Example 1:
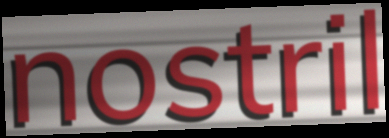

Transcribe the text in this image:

nostril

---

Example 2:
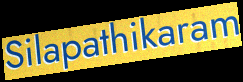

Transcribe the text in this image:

Silapathikaram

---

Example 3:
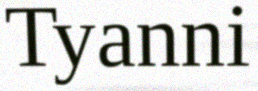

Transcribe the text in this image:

Tyanni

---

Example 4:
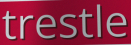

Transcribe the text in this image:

trestle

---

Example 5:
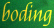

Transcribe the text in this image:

boding